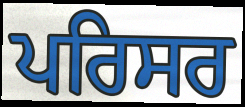
ਪਰਿਸਰ